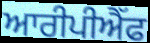
ਆਰੀਪੀਐੱਫ